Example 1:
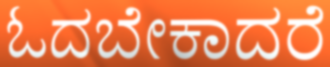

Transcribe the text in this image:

ಓದಬೇಕಾದರೆ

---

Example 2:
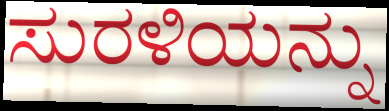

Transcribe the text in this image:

ಸುರಳಿಯನ್ನು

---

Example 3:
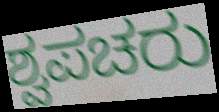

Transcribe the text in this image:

ಶ್ವಪಚರು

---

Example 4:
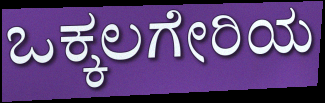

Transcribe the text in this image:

ಒಕ್ಕಲಗೇರಿಯ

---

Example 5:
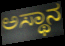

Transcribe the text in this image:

ಅಸ್ಥಾನ